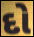
દો